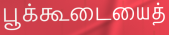
பூக்கூடையைத்